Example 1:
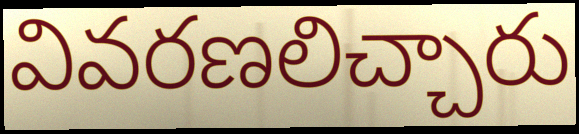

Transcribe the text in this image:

వివరణలిచ్చారు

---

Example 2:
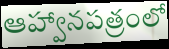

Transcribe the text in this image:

ఆహ్వానపత్రంలో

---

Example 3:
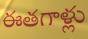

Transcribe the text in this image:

ఈతగాళ్లు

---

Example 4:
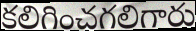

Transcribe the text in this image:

కలిగించగలిగారు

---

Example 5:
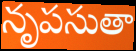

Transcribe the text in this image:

నృపసుతా